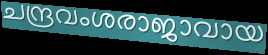
ചന്ദ്രവംശരാജാവായ